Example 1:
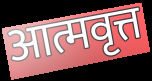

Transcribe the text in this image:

आत्मवृत्त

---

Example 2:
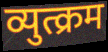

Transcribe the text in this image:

व्युत्क्रम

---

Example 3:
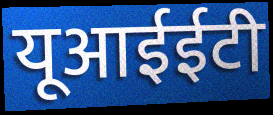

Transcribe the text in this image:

यूआईईटी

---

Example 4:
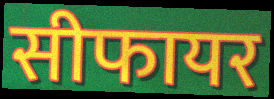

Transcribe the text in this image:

सीफायर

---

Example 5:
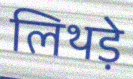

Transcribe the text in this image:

लिथड़े